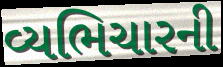
વ્યભિચારની